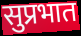
सुप्रभात